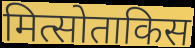
मित्सोताकिस